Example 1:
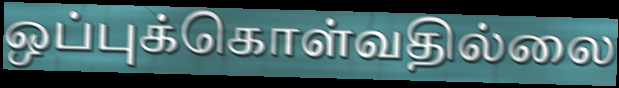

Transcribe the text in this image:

ஒப்புக்கொள்வதில்லை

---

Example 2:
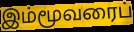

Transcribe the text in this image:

இம்மூவரைப்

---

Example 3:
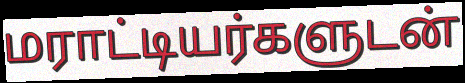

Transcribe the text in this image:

மராட்டியர்களுடன்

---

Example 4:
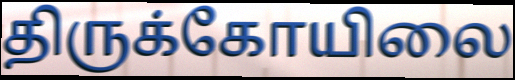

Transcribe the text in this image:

திருக்கோயிலை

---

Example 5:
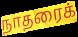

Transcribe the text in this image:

நாதரைக்